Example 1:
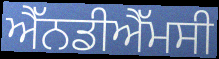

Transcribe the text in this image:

ਐੱਨਡੀਐੱਮਸੀ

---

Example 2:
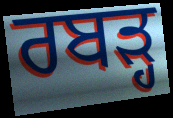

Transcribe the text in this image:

ਰਬੜ੍ਹ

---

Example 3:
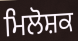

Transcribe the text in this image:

ਮਿਲੋਸ਼ਕ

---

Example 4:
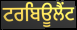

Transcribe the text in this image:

ਟਰਬਿਊਲੈਂਟ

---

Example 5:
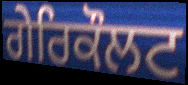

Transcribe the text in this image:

ਗੇਰਿਕੌਲਟ